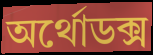
অর্থোডক্স